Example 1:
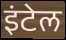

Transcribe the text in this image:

इंटेल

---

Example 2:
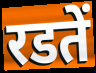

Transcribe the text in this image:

रडतें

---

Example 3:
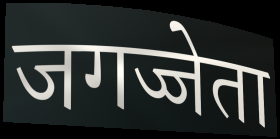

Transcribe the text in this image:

जगज्जेता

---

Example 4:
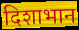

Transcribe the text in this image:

दिशाभान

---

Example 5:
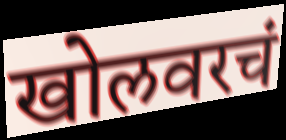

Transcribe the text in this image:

खोलवरचं